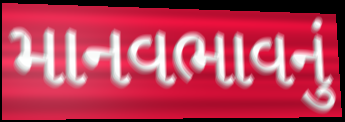
માનવભાવનું